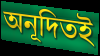
অনূদিতই